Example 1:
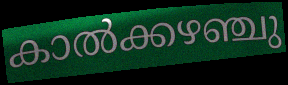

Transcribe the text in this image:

കാൽക്കഴഞ്ചു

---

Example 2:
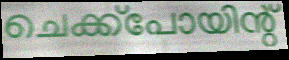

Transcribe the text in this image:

ചെക്ക്പോയിന്റ്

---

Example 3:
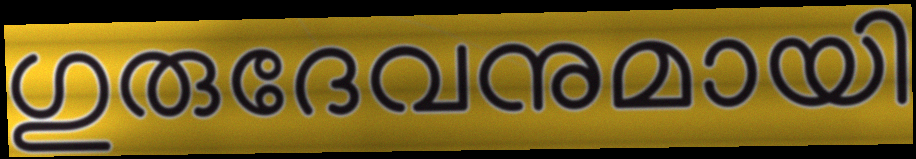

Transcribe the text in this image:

ഗുരുദേവനുമായി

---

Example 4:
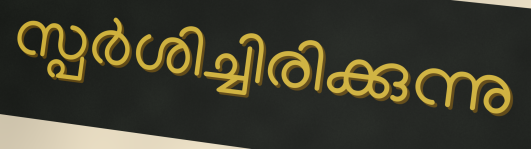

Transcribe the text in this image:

സ്പർശിച്ചിരിക്കുന്നു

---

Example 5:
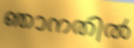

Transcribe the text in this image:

ഞാനതിൽ